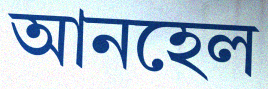
আনহেল